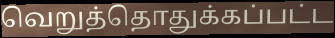
வெறுத்தொதுக்கப்பட்ட